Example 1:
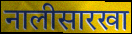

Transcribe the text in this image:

नालीसारखा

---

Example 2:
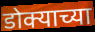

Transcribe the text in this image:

डोक्याच्या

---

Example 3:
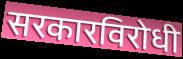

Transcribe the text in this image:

सरकारविरोधी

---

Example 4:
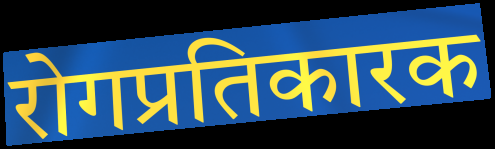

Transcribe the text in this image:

रोगप्रतिकारक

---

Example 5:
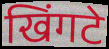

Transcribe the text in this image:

खिंगटे